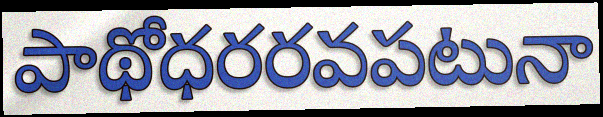
పాథోధరరవపటునా